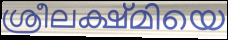
ശ്രീലക്ഷ്മിയെ